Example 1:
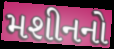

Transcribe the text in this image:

મશીનનો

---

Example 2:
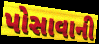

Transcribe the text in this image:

પોસાવાની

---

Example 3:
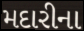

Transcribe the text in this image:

મદારીના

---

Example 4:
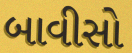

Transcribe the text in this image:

બાવીસો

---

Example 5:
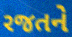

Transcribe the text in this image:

રજતને